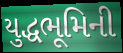
યુદ્ધભૂમિની